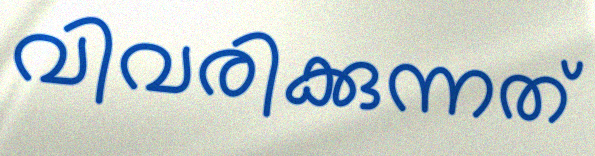
വിവരിക്കുന്നത്